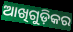
ଆଖିଗୁଡ଼ିକର